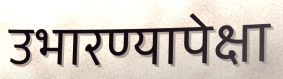
उभारण्यापेक्षा